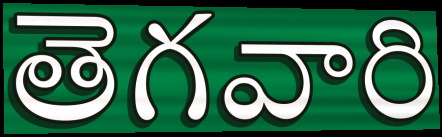
తెగవారి